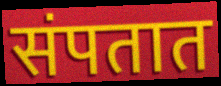
संपतात